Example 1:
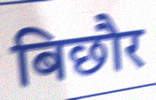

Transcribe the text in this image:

बिछौर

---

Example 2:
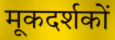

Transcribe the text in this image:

मूकदर्शकों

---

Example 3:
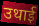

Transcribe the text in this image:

उथाई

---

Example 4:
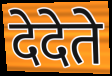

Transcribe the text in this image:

देदेते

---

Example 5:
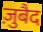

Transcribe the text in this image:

ज़ुबैद